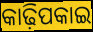
କାଢ଼ିପକାଇ